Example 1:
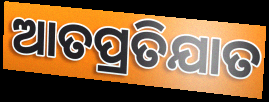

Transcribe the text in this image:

ଆତପ୍ରତିଯାତ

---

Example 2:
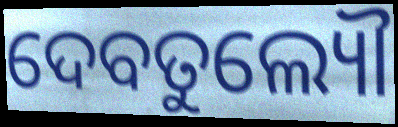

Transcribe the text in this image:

ଦେବତୁଲ୍ୟୌ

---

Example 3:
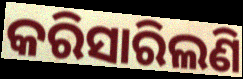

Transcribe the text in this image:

କରିସାରିଲଣି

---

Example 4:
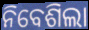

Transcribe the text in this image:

ନିବେଶିଲା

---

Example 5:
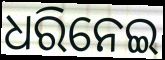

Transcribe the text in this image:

ଧରିନେଇ